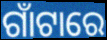
ଗାଁଟାରେ